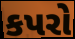
કપરો